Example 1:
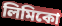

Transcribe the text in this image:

লিমিকো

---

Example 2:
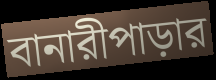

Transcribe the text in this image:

বানারীপাড়ার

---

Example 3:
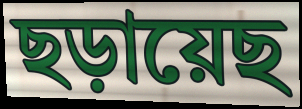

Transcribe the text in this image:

ছড়ায়েছ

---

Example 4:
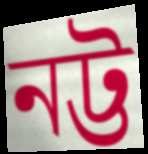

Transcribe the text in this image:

নট্ট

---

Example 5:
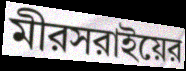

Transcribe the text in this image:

মীরসরাইয়ের